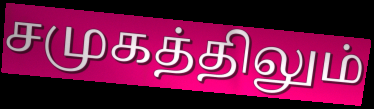
சமுகத்திலும்